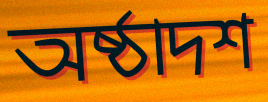
অষ্ঠাদশ